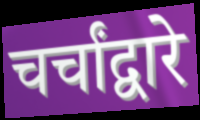
चर्चांद्वारे